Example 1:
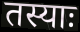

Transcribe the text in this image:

तस्याः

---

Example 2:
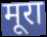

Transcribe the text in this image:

मूरा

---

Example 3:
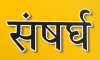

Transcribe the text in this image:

संषर्घ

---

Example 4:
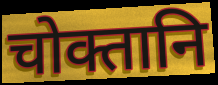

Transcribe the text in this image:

चोक्तानि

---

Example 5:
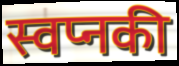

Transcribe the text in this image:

स्वप्नकी